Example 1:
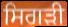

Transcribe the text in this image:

ਸਿਗੜੀ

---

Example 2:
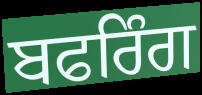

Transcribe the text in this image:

ਬਫਰਿੰਗ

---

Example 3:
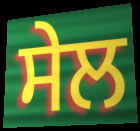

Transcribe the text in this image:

ਸੇਲ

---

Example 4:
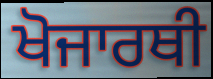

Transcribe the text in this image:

ਖੋਜਾਰਥੀ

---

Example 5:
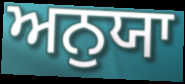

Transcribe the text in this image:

ਅਨੁਯਾ